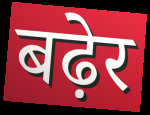
बढ़ेर